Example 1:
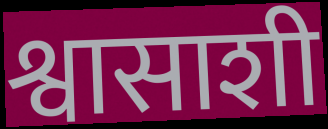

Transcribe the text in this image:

श्वासाशी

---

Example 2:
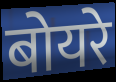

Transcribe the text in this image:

बोयरे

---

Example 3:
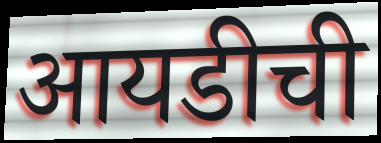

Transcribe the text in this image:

आयडीची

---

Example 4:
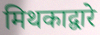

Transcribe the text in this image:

मिथकाद्वारे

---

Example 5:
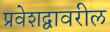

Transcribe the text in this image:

प्रवेशद्वावरील